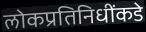
लोकप्रतिनिधींकडे